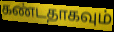
கண்டதாகவும்